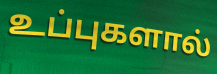
உப்புகளால்